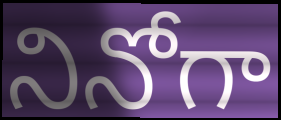
నినోగా